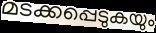
മടക്കപ്പെടുകയും